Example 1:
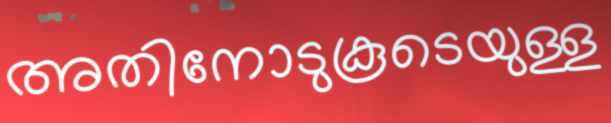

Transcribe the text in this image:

അതിനോടുകൂടെയുള്ള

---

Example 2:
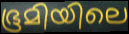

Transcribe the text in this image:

ഭൂമിയിലെ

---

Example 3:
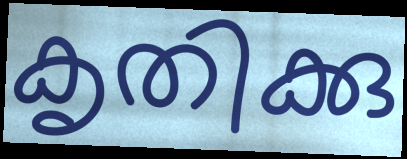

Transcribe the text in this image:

കൃതിക്കു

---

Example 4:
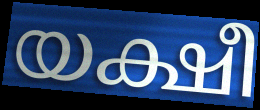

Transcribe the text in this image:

യക്ഷീ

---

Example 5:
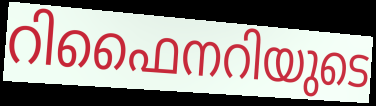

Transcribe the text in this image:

റിഫൈനറിയുടെ